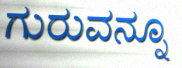
ಗುರುವನ್ನೂ